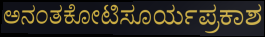
ಅನಂತಕೋಟಿಸೂರ್ಯಪ್ರಕಾಶ